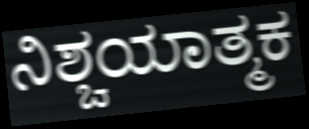
ನಿಶ್ಚಯಾತ್ಮಕ